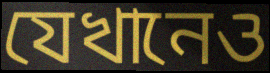
যেখানেও